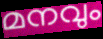
മനവും